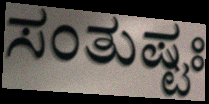
ಸಂತುಷ್ಟಃ